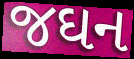
જઘન